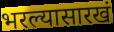
भरल्यासारखं